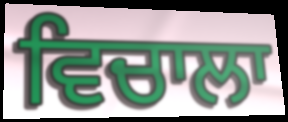
ਵਿਚਾਲਾ